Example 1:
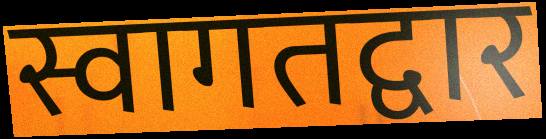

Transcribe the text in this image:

स्वागतद्वार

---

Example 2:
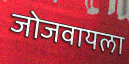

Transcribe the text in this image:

जोजवायला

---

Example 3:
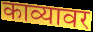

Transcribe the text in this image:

काव्यावर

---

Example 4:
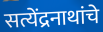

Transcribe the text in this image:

सत्येंद्रनाथांचे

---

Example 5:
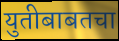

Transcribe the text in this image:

युतीबाबतचा